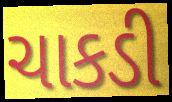
ચાકડી